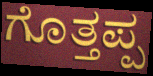
ಗೊತ್ತಪ್ಪ